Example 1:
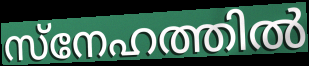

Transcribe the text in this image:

സ്നേഹത്തിൽ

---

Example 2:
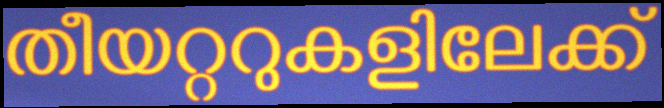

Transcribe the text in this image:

തീയറ്ററുകളിലേക്ക്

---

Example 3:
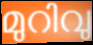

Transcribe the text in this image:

മുറിവു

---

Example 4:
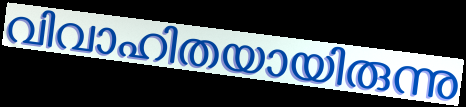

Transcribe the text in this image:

വിവാഹിതയായിരുന്നു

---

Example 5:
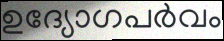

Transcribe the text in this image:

ഉദ്യോഗപർവം